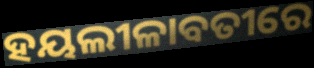
ହୟଲୀଳାବତୀରେ